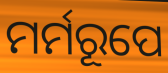
ମର୍ମରୂପେ